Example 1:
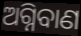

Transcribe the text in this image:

ଅଗ୍ନିବାଣ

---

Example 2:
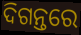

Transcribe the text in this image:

ଦିଗନ୍ତରେ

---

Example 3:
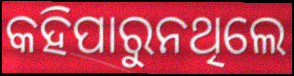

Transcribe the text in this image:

କହିପାରୁନଥିଲେ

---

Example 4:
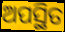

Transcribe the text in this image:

ଅପସ୍ଥିତ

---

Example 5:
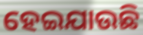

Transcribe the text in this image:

ହେଇଯାଉଛି